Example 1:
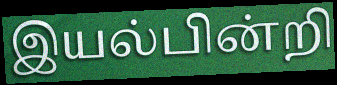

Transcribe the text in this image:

இயல்பின்றி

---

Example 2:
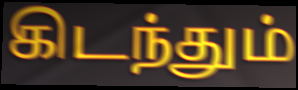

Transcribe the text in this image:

கிடந்தும்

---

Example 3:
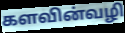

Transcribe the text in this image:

களவின்வழி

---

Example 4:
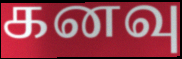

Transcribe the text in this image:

கனவு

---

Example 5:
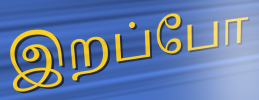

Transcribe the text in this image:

இறப்போ